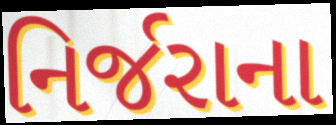
નિર્જરાના